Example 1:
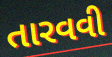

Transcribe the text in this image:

તારવવી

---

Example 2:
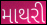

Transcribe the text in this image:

માથરી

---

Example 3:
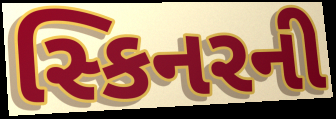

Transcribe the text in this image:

સ્કિનરની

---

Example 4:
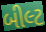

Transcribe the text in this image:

બીલ્ટ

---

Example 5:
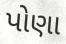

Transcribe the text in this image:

પોણા